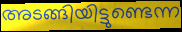
അടങ്ങിയിട്ടുണ്ടെന്ന